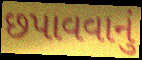
છપાવવાનું